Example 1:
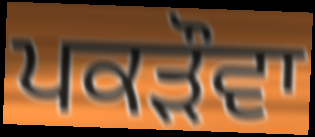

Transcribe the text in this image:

ਪਕੜੌਵਾ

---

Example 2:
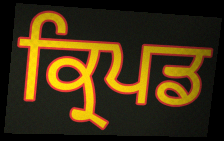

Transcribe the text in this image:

ਕ੍ਰਿਪਡ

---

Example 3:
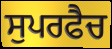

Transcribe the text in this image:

ਸੁਪਰਫੈਚ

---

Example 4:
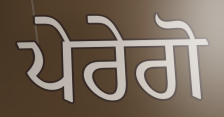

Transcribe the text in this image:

ਪੇਰੇਗੋ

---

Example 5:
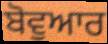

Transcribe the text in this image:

ਬੋਵੁਆਰ